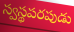
స్వస్థపరపుడు